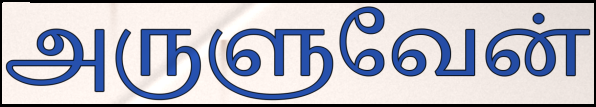
அருளுவேன்